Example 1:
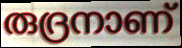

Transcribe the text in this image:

രുദ്രനാണ്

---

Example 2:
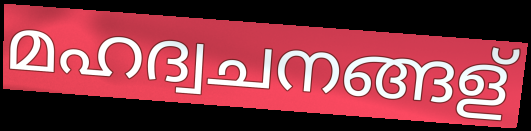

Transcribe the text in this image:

മഹദ്വചനങ്ങള്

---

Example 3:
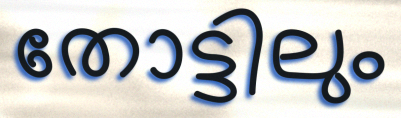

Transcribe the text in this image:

തോട്ടിലും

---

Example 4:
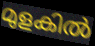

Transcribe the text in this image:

മുളകിൽ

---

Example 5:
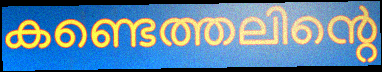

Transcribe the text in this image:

കണ്ടെത്തലിന്റെ